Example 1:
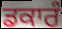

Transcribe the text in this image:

ਡਕਾਰੰ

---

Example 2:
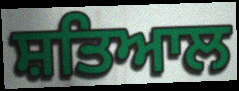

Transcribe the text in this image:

ਸ਼ਤਿਆਲ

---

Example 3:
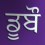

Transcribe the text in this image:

ਡੂਬੌ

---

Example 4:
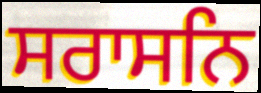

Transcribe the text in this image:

ਸਰਾਸਨਿ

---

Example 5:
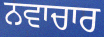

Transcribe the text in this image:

ਨਵਾਚਾਰ